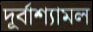
দূর্বাশ্যামল